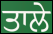
ਤਾਲੇ